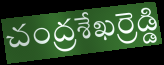
చంద్రశేఖర్రెడ్డి